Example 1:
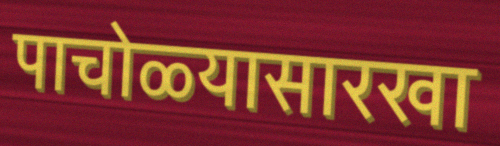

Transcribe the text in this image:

पाचोळ्यासारखा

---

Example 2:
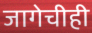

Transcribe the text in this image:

जागेचीही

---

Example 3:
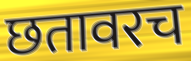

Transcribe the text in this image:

छतावरच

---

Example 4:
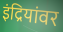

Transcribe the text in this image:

इंद्रियांवर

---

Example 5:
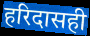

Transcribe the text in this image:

हरिदासही